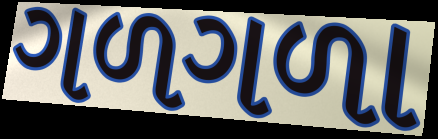
ગળગળા